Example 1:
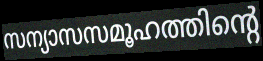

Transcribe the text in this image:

സന്യാസസമൂഹത്തിന്റെ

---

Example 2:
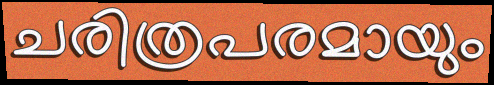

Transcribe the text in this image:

ചരിത്രപരമായും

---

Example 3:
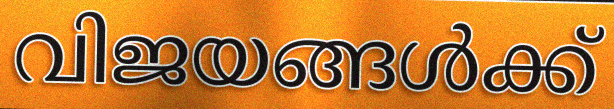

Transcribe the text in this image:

വിജയങ്ങൾക്ക്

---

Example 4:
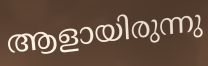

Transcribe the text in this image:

ആളായിരുന്നു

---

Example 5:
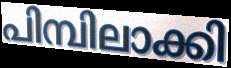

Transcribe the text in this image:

പിമ്പിലാക്കി